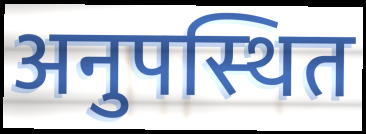
अनुपस्थित